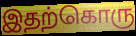
இதற்கொரு